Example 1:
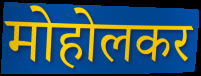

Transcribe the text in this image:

मोहोलकर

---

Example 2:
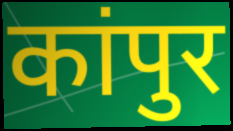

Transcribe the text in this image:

कांपुर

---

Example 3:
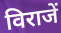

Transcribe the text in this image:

विराजें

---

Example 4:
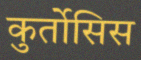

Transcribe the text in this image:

कुर्तोसिस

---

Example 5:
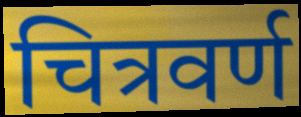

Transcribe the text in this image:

चित्रवर्ण